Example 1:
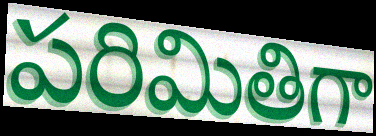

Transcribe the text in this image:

పరిమితిగా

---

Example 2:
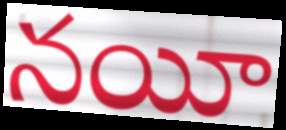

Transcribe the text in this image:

నయీ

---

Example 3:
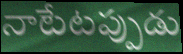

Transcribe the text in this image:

నాటేటప్పుడు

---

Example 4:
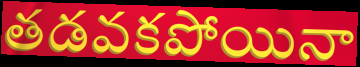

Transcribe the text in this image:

తడవకపోయినా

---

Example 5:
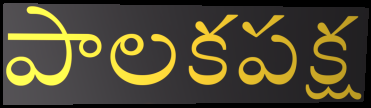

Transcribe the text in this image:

పాలకపక్ష